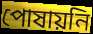
পোষায়নি